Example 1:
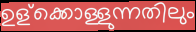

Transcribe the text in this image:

ഉള്ക്കൊള്ളുന്നതിലും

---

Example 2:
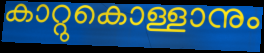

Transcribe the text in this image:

കാറ്റുകൊള്ളാനും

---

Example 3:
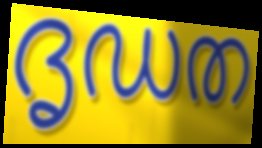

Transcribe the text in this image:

ദൃഡത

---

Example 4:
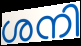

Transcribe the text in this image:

ശനി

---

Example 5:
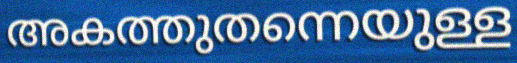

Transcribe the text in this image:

അകത്തുതന്നെയുള്ള